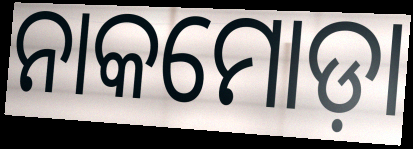
ନାକମୋଡ଼ା